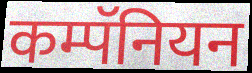
कम्पॅनियन